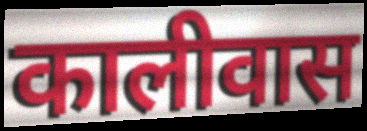
कालीवास